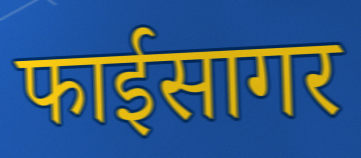
फाईसागर